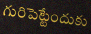
గురిపెట్టేందుకు